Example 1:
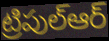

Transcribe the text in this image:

ట్రిపుల్ఆర్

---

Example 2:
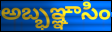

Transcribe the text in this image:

అబ్భఞ్ఞాసిం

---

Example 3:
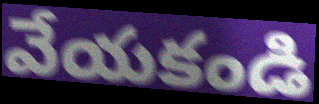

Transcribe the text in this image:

వేయకండి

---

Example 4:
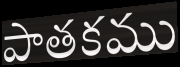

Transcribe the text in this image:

పాతకము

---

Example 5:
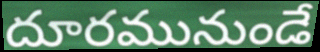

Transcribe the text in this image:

దూరమునుండే